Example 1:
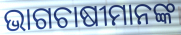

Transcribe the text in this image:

ଭାଗଚାଷୀମାନଙ୍କ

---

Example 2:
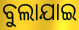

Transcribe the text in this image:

ବୁଲାଯାଇ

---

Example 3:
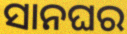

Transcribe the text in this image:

ସାନଘର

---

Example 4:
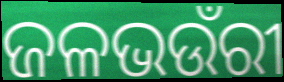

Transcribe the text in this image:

ଜଳଭଉଁରୀ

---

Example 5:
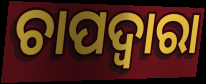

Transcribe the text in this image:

ଚାପଦ୍ବାରା